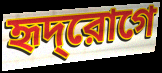
হৃদ্‌রোগে